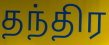
தந்திர